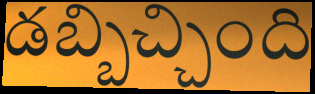
డబ్బిచ్చింది